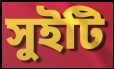
সুইটি